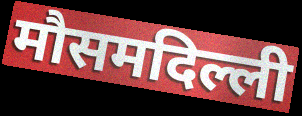
मौसमदिल्ली